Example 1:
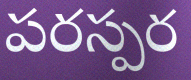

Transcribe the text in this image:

పరస్పర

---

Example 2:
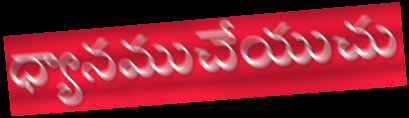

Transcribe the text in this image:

ధ్యానముచేయుచు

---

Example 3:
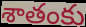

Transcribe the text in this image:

శాతంకు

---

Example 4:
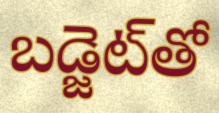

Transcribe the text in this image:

బడ్జెట్‌తో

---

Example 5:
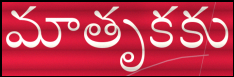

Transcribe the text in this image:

మాతృకకు